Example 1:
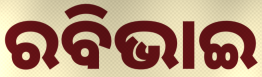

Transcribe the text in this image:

ରବିଭାଇ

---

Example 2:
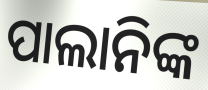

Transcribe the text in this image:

ପାଲାନିଙ୍କ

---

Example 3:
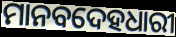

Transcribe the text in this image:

ମାନବଦେହଧାରୀ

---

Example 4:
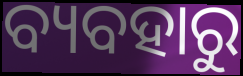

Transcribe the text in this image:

ବ୍ୟବହାରୁ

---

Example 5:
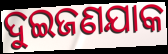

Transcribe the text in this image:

ଦୁଇଜଣଯାକ